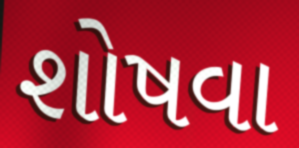
શોષવા